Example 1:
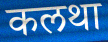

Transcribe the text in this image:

कलथा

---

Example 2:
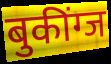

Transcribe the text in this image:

बुकींग्ज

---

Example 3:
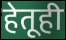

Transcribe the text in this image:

हेतूही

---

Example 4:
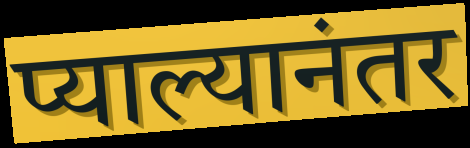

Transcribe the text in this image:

प्याल्यानंतर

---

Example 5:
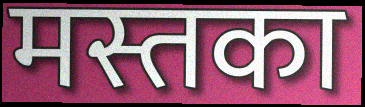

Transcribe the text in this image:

मस्तका